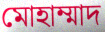
মোহাম্মাদ